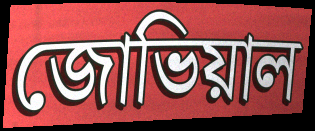
জোভিয়াল